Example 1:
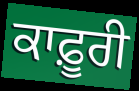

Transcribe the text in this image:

ਕਾਫ਼ੂਰੀ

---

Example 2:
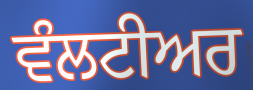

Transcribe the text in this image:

ਵੰਲਟੀਅਰ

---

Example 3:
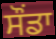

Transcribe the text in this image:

ਸੌਂਡਾ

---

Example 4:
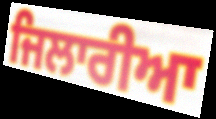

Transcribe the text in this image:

ਜਿਲਾਰੀਆ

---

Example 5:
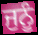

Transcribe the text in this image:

ਜੁਨੂੰ